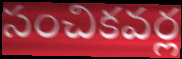
సంచికవర్ల